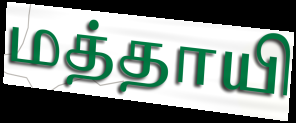
மத்தாயி